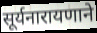
सूर्यनारायणाने